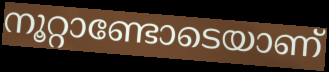
നൂറ്റാണ്ടോടെയാണ്